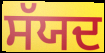
ਸੱਯਦ